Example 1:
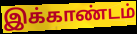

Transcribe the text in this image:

இக்காண்டம்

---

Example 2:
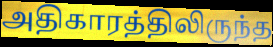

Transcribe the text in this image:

அதிகாரத்திலிருந்த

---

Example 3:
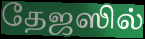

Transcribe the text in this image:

தேஜஸில்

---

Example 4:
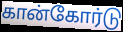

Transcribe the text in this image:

கான்கோர்டு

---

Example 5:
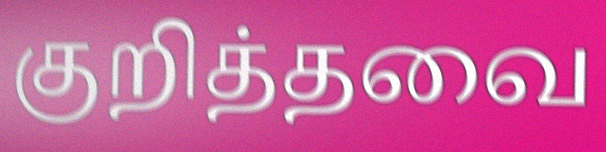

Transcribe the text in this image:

குறித்தவை